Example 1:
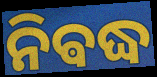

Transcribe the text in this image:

ନିଵଦ୍ଧ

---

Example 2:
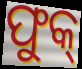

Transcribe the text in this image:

ଫୁକ୍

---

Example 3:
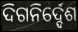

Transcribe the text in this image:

ଦିଗନିର୍ଦ୍ଦେଶ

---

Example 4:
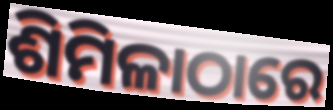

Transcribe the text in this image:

ଶିମିଳାଠାରେ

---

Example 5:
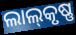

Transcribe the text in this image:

ଲାଲ୍‌କୃଷ୍ଣ